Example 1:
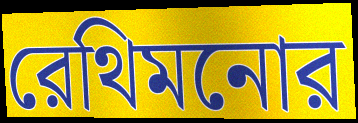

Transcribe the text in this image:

রেথিমনোর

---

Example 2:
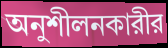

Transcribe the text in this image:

অনুশীলনকারীর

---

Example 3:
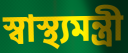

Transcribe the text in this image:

স্বাস্থ্যমন্ত্রী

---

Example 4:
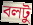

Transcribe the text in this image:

বলটু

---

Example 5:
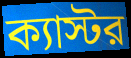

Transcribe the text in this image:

ক্যাস্টর